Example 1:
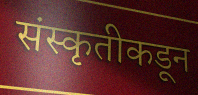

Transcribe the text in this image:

संस्कृतीकडून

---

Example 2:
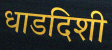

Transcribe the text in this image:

धाडदिशी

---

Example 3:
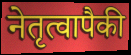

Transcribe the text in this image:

नेतृत्वापैकी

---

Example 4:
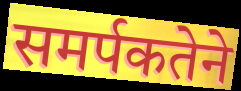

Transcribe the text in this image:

समर्पकतेने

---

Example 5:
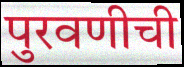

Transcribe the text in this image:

पुरवणीची